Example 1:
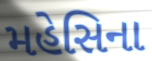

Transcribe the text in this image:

મહેસિના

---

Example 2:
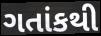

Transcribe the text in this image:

ગતાંકથી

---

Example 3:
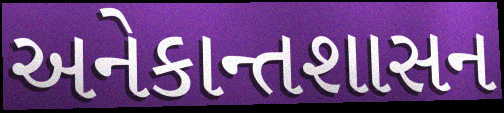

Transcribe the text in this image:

અનેકાન્તશાસન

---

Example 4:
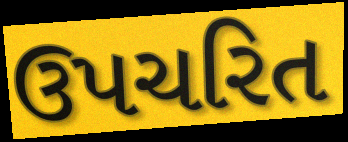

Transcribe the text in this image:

ઉપચરિત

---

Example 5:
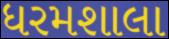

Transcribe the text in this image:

ધરમશાલા